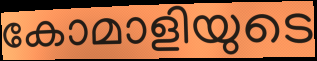
കോമാളിയുടെ